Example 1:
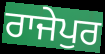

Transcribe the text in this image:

ਰਾਜੇਪੁਰ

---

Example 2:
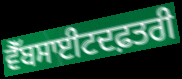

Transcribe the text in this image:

ਵੈੱਬਸਾਈਟਦਫ਼ਤਰੀ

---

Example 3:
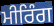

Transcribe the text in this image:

ਮੀਰਿੰਗ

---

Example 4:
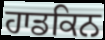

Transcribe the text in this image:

ਹਾਡਕਿਨ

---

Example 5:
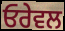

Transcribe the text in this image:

ਓਰੇਵਲ